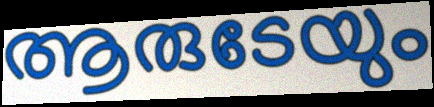
ആരുടേയും